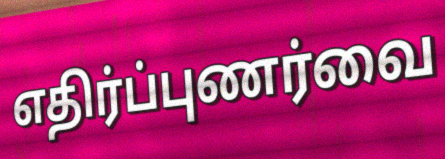
எதிர்ப்புணர்வை